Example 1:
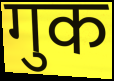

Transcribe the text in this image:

गुक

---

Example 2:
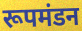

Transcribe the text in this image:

रूपमंडन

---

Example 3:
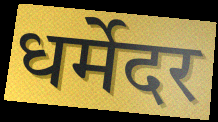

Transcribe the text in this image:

धर्मेदर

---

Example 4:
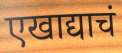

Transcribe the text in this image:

एखाद्याचं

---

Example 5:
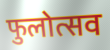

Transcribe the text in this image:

फुलोत्सव